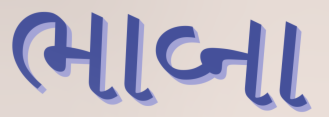
ભાવ્ના